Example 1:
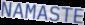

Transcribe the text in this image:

NAMASTE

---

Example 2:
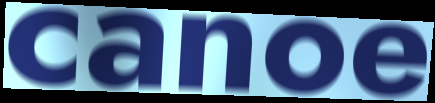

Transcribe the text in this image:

canoe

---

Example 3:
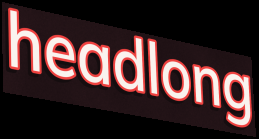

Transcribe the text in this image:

headlong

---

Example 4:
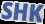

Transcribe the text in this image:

SHK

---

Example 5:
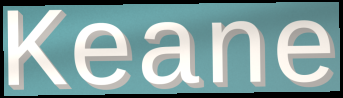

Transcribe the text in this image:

Keane